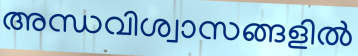
അന്ധവിശ്വാസങ്ങളിൽ